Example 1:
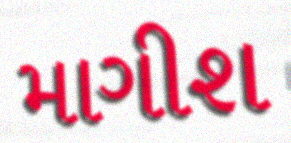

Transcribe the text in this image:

માગીશ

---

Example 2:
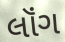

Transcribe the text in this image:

લૉંગ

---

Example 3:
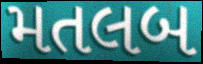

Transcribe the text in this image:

મતલબ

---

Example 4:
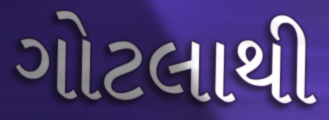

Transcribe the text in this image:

ગોટલાથી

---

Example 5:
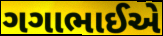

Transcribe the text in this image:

ગગાભાઈએ